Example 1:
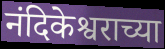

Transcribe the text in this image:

नंदिकेश्वराच्या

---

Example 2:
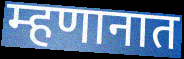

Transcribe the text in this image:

म्हणानात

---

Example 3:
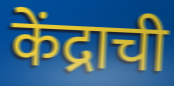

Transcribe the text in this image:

केंद्राची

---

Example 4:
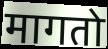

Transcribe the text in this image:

मागतो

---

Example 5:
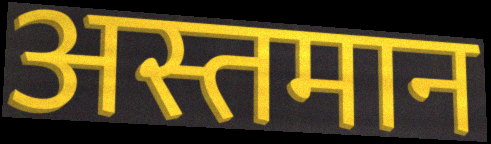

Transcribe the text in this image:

अस्तमान